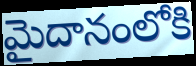
మైదానంలోకి